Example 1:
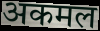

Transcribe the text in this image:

अकमल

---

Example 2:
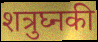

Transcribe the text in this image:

शत्रुघ्नकी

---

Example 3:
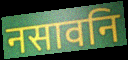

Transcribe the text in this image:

नसावनि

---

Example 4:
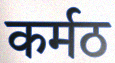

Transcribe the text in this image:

कर्मठ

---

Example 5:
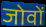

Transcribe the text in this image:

जोवों